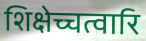
शिक्षेच्चत्वारि